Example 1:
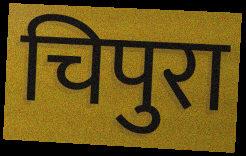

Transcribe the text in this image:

चिपुरा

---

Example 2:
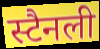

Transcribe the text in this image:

स्टैनली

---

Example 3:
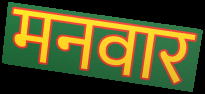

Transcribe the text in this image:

मनवार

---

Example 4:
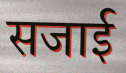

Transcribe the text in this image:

सजाई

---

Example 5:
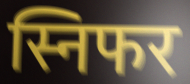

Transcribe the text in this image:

स्निफर